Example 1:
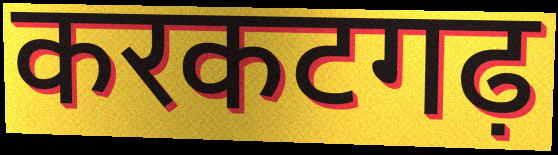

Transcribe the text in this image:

करकटगढ़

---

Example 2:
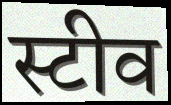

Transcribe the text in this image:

स्टीव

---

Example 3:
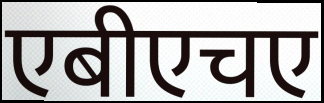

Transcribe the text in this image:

एबीएचए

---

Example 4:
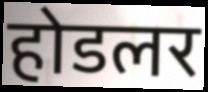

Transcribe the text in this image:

होडलर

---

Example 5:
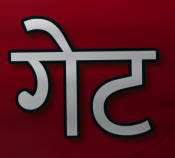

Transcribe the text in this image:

गेट